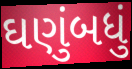
ઘણુંબધું